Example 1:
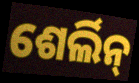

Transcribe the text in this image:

ଶେର୍ଲିନ୍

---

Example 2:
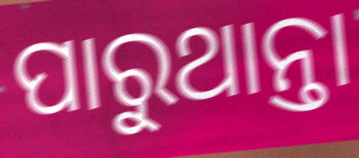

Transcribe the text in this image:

ପାରୁଥାନ୍ତା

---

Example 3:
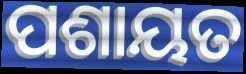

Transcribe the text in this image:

ପଶାୟତ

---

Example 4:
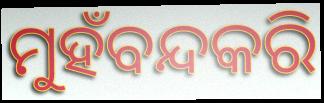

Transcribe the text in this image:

ମୁହଁବନ୍ଦକରି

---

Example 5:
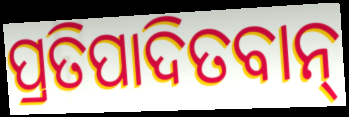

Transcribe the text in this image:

ପ୍ରତିପାଦିତବାନ୍